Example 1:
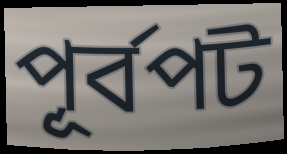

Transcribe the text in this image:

পূর্বপট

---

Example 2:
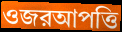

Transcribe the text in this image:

ওজরআপত্তি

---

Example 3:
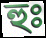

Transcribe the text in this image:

হুঃ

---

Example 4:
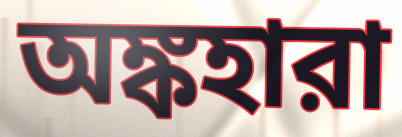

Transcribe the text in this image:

অঙ্কহারা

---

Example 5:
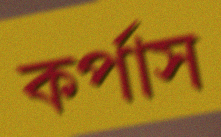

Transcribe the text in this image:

কর্পাস